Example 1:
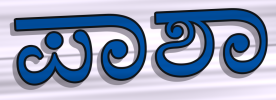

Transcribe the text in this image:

ಪಾಶಾ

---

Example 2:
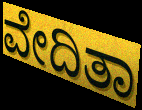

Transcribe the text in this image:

ವೇದಿತಾ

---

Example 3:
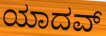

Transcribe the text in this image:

ಯಾದವ್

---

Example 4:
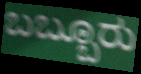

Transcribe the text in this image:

ಬಬ್ಬೂರು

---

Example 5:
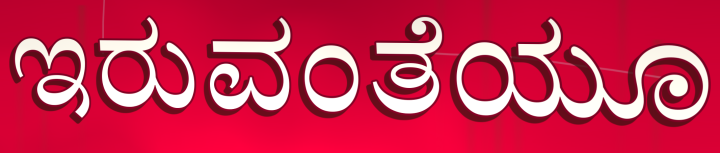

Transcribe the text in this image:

ಇರುವಂತೆಯೂ